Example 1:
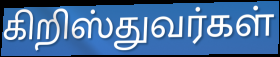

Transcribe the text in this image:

கிறிஸ்துவர்கள்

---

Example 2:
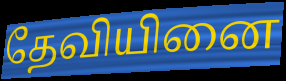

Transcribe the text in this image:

தேவியினை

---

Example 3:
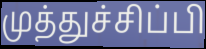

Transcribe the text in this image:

முத்துச்சிப்பி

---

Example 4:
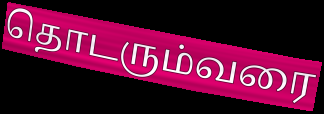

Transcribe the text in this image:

தொடரும்வரை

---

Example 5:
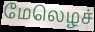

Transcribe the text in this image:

மேலெழச்